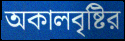
অকালবৃষ্টির